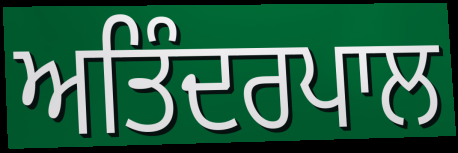
ਅਤਿੰਦਰਪਾਲ